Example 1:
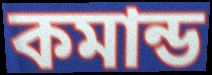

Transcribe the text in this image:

কমান্ড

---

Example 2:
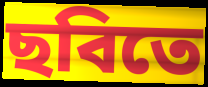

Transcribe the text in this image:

ছবিতে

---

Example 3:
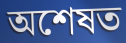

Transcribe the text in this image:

অশেষত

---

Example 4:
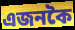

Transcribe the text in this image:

এজনকৈ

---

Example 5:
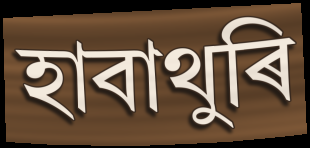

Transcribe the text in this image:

হাবাথুৰি